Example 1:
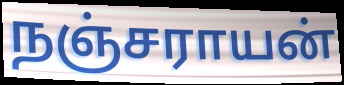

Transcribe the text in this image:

நஞ்சராயன்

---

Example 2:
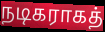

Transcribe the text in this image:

நடிகராகத்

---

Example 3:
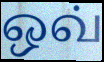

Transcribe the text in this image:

ஒவ்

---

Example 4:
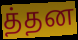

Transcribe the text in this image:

த்தன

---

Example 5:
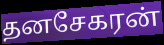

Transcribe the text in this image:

தனசேகரன்